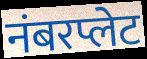
नंबरप्लेट